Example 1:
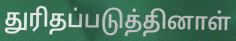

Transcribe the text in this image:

துரிதப்படுத்தினாள்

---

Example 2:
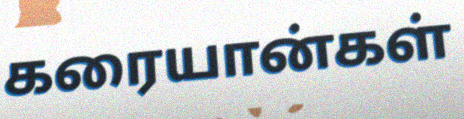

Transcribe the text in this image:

கரையான்கள்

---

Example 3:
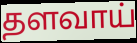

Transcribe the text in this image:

தளவாய்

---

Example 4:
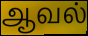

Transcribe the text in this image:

ஆவல்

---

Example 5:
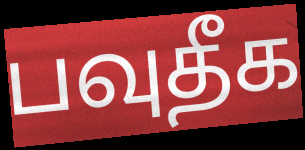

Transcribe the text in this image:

பவுதீக